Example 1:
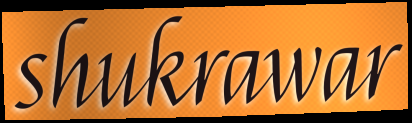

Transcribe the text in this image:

shukrawar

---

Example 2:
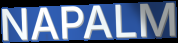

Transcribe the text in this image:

NAPALM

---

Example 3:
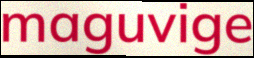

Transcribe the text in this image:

maguvige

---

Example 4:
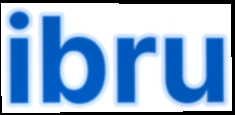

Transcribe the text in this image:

ibru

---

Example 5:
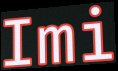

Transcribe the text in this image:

Imi